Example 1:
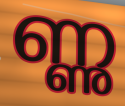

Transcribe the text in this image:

ണ്ണു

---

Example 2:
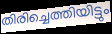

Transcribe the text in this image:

തിരിച്ചെത്തിയിട്ടും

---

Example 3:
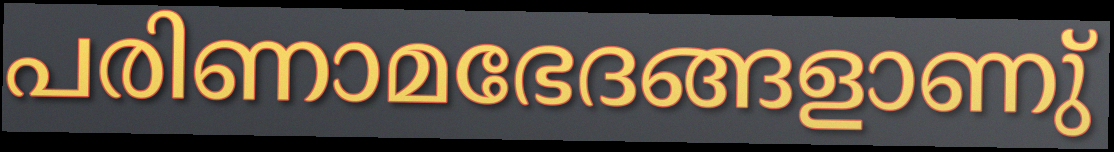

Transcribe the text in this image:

പരിണാമഭേദങ്ങളാണു്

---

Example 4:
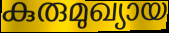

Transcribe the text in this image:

കുരുമുഖ്യായ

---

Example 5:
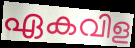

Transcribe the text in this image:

ഏകവിള